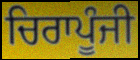
ਚਿਰਾਪੂੰਜੀ